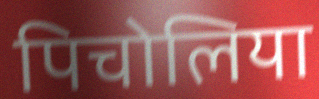
पिचोलिया